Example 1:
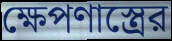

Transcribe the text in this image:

ক্ষেপণাস্ত্রের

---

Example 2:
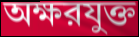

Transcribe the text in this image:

অক্ষরযুক্ত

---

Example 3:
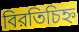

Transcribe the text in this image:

বিরতিচিহ্ন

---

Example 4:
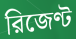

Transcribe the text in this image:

রিজেণ্ট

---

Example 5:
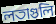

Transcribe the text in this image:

লতাগুলি